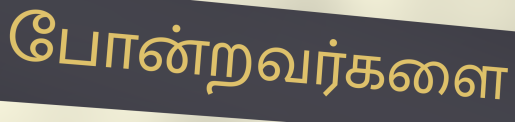
போன்றவர்களை